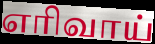
எரிவாய்